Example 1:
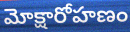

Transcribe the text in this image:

మోక్షారోహణం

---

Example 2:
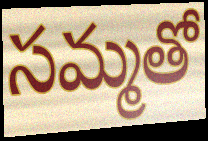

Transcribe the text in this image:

సమ్మతో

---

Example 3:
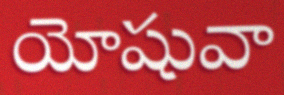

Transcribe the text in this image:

యోషువా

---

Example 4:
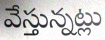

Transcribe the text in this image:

వేస్తున్నట్లు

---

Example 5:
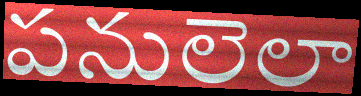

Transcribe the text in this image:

పనులెలా